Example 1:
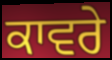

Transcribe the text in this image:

ਕਾਵਰੇ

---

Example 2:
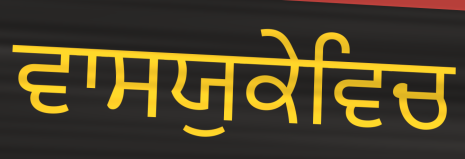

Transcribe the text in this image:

ਵਾਸਯੁਕੇਵਿਚ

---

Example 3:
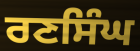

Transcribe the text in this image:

ਰਣਸਿੰਘ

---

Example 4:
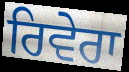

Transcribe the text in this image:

ਰਿਵੇਰਾ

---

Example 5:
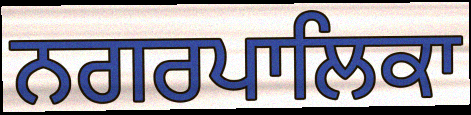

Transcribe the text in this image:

ਨਗਰਪਾਲਿਕਾ